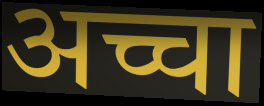
अच्चा